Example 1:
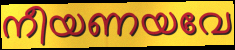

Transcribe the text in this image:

നീയണയവേ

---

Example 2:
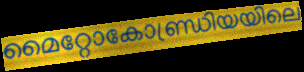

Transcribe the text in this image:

മൈറ്റോകോണ്ഡ്രിയയിലെ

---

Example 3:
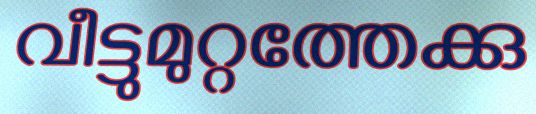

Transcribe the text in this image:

വീട്ടുമുറ്റത്തേക്കു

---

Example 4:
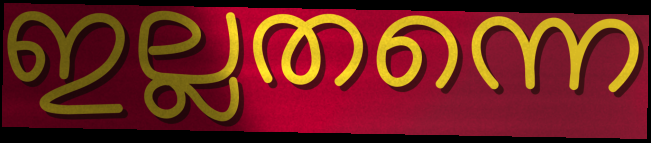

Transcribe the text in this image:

ഇല്ലതന്നെ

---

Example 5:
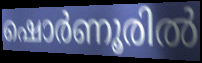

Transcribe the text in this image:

ഷൊർണൂരിൽ